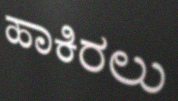
ಹಾಕಿರಲು